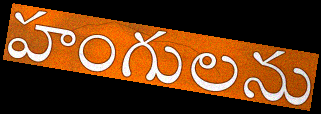
హంగులను